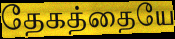
தேகத்தையே